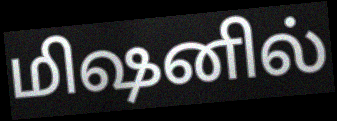
மிஷனில்